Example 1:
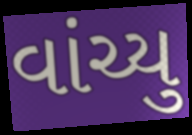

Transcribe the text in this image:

વાંચ્યુ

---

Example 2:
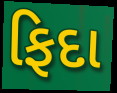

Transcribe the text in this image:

ફિદા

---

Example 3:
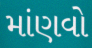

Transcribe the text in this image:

માંણવો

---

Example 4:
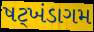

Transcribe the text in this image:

ષટ્ખંડાગમ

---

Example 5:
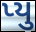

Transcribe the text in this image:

પ્યુ